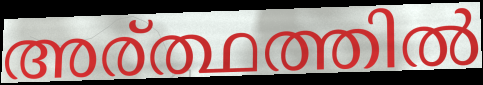
അര്ത്ഥത്തിൽ